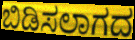
ಬಿಡಿಸಲಾಗದ